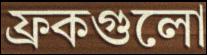
ফ্রকগুলো